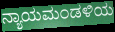
ನ್ಯಾಯಮಂಡಳಿಯ